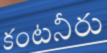
కంటనీరు